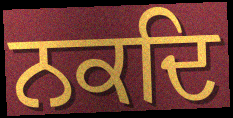
ਨਕਦਿ